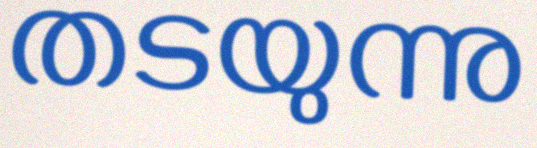
തടയുന്നു